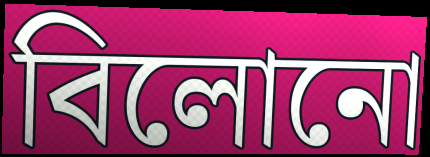
বিলোনো